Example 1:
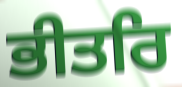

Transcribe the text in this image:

ਭੀਤਰਿ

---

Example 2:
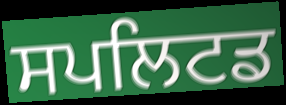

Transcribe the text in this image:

ਸਪਲਿਟਡ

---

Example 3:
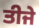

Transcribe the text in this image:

ਤੀਜੇ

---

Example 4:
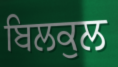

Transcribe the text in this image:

ਬਿਲਕੁਲ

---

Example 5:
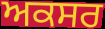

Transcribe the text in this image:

ਅਕਸਰ